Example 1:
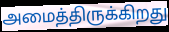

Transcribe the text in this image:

அமைத்திருக்கிறது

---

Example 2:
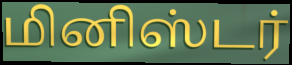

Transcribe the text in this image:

மினிஸ்டர்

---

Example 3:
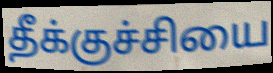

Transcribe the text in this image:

தீக்குச்சியை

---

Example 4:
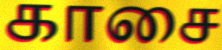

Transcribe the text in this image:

காசை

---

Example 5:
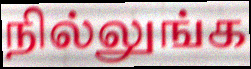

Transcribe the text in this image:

நில்லுங்க